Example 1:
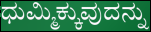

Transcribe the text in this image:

ಧುಮ್ಮಿಕ್ಕುವುದನ್ನು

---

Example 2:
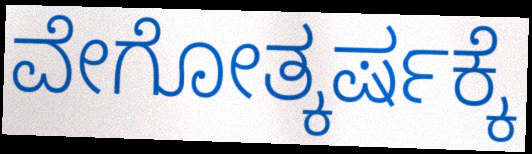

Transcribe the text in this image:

ವೇಗೋತ್ಕರ್ಷಕ್ಕೆ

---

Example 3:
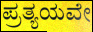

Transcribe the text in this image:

ಪ್ರತ್ಯಯವೇ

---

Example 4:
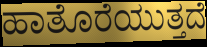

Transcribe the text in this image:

ಹಾತೊರೆಯುತ್ತದೆ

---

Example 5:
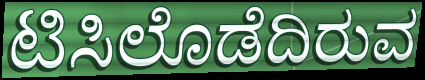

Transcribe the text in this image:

ಟಿಸಿಲೊಡೆದಿರುವ